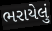
ભરાયેલું